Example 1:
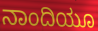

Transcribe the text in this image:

ನಾಂದಿಯೂ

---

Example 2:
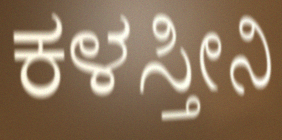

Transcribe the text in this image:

ಕಳಸ್ತೀನಿ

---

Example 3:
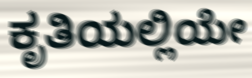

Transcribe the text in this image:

ಕೃತಿಯಲ್ಲಿಯೇ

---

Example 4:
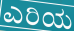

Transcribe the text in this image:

ಎರಿಯ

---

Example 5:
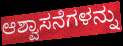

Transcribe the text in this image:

ಆಶ್ವಾಸನೆಗಳನ್ನು